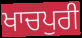
ਖਾਚਪੁਰੀ